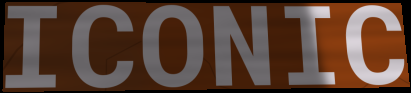
ICONIC